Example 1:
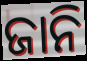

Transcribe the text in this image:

ଜାନି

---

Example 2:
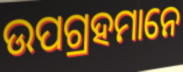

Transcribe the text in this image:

ଉପଗ୍ରହମାନେ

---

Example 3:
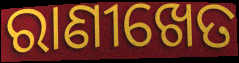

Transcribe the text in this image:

ରାଣୀଖେତ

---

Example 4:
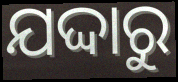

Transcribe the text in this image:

ଯଦ୍ଦାରୁ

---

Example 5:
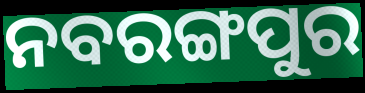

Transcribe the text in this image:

ନବରଙ୍ଗପୁର